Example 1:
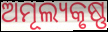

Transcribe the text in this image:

ଅମୂଲ୍ୟକୃଷ୍ଣ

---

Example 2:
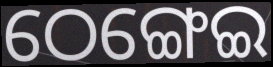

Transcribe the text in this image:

ଠେଙ୍ଗେଇ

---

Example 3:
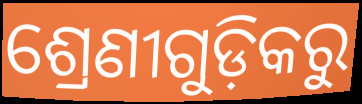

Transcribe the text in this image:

ଶ୍ରେଣୀଗୁଡ଼ିକରୁ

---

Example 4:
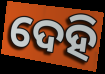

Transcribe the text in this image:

ଦେହି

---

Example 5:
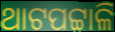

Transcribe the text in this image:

ଥାଟପଟ୍ଟାଳି